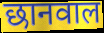
छानवाल